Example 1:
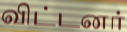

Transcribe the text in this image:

விட்டனர்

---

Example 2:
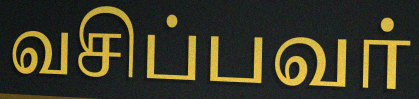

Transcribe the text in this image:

வசிப்பவர்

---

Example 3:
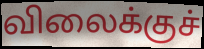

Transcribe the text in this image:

விலைக்குச்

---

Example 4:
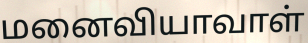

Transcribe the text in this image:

மனைவியாவாள்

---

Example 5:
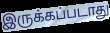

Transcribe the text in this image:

இருக்கப்படாது